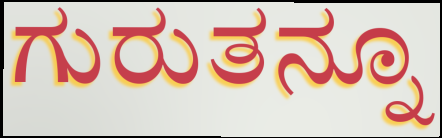
ಗುರುತನ್ನೂ